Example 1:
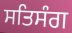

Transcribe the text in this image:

ਸਤਿਸੰਗ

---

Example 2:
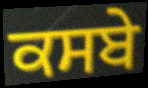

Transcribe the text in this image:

ਕਸਬੇ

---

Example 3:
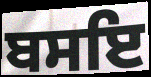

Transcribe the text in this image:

ਬਸਇ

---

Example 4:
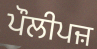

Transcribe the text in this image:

ਪੌਲੀਪਜ਼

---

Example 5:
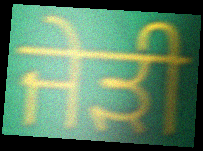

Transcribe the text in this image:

ਜੇੜੀ